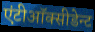
एंटीऑक्सीडेन्ट